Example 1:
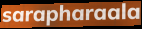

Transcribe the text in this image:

sarapharaala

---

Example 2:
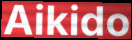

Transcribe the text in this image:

Aikido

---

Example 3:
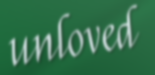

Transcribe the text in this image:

unloved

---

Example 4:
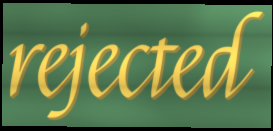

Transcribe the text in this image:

rejected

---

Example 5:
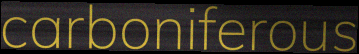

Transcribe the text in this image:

carboniferous